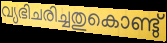
വ്യഭിചരിച്ചതുകൊണ്ടു്